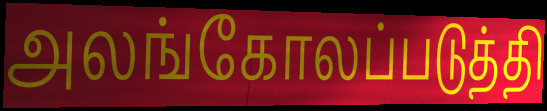
அலங்கோலப்படுத்தி